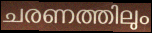
ചരണത്തിലും